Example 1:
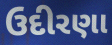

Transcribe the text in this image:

ઉદીરણા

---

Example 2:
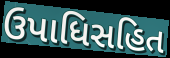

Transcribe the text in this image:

ઉપાધિસહિત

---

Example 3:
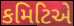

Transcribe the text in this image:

કમિટિએ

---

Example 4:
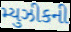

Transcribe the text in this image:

મ્યુઝીકની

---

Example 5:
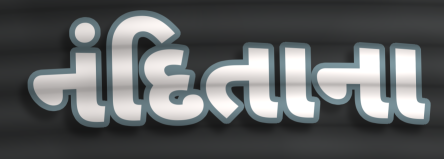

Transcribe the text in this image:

નંદિતાના